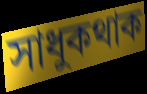
সাধুকথাক